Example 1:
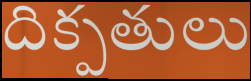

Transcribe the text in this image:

దిక్పతులు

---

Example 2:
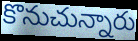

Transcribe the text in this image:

కొనుచున్నారు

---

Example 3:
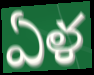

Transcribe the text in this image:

ఏళ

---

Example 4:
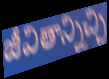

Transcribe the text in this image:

జీవితాన్నిచ్చి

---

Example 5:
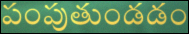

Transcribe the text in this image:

పంపుతుండడం